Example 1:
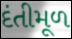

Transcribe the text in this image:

દંતીમૂળ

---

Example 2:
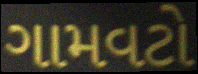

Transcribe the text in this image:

ગામવટો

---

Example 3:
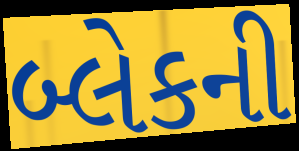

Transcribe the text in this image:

બ્લેકની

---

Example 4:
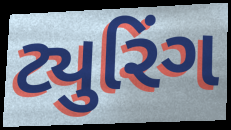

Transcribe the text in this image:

ટ્યુરિંગ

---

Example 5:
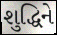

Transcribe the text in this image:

શુદ્ધિને